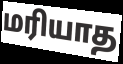
மரியாத